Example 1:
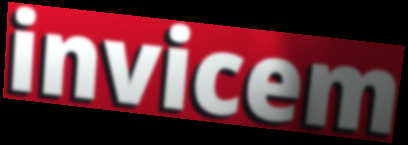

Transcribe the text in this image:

invicem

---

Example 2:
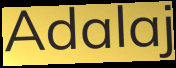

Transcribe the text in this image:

Adalaj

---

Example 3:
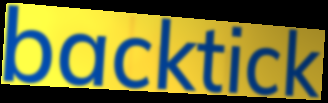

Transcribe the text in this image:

backtick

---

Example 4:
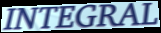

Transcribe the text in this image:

INTEGRAL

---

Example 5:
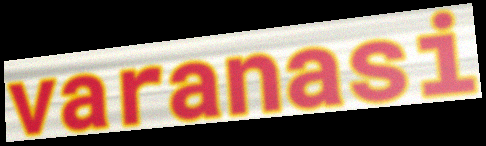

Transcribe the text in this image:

varanasi